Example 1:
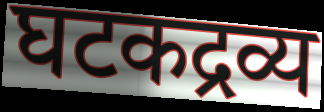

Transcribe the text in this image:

घटकद्रव्य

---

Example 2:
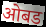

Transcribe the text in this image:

ओबड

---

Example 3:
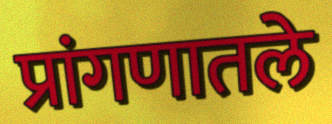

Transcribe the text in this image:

प्रांगणातले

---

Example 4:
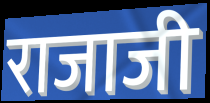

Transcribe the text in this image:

राजाजी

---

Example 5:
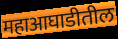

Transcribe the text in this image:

महाआघाडीतील